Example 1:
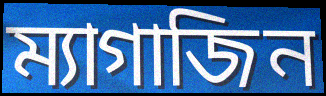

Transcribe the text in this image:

ম্যাগাজিন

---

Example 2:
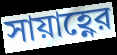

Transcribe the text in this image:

সায়াহ্ণের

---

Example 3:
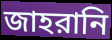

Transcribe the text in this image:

জাহরানি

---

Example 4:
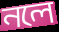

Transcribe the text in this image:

নলে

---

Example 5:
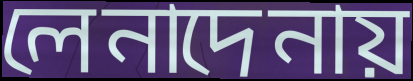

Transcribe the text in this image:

লেনাদেনায়